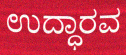
ಉದ್ಧಾರವ